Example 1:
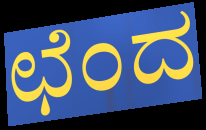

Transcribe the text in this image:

ಛೆಂದ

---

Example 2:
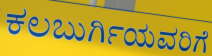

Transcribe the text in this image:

ಕಲಬುರ್ಗಿಯವರಿಗೆ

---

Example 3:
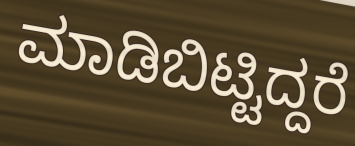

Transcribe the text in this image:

ಮಾಡಿಬಿಟ್ಟಿದ್ದರೆ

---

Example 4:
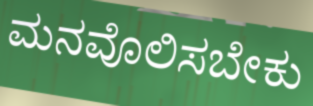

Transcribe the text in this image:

ಮನವೊಲಿಸಬೇಕು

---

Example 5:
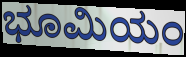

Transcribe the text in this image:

ಭೂಮಿಯಂ